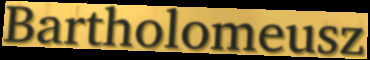
Bartholomeusz